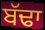
ਬੱਢਾ